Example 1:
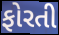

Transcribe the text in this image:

ફોરતી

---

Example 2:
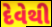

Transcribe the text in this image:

દેવેથી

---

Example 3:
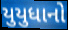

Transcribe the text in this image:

યુયુધાનો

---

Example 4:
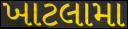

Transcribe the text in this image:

ખાટલામા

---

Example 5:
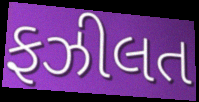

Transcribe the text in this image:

ફઝીલત